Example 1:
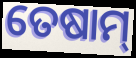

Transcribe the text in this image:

ତେଷାମ୍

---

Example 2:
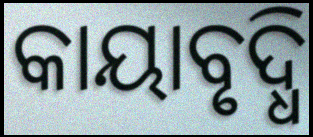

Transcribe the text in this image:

କାୟାବୃଦ୍ଧି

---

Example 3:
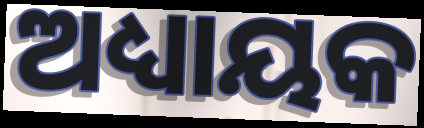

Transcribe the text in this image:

ଅଧ୍ୟାୟକ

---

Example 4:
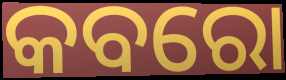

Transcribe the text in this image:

କବରୋ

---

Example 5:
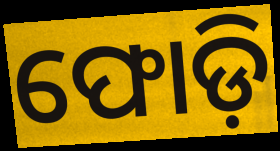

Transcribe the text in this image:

ଫୋଡ଼ି